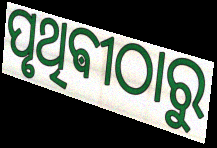
ପୃଥିଵୀଠାରୁ